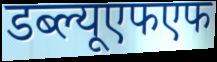
डब्ल्यूएफएफ